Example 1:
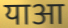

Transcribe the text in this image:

याआ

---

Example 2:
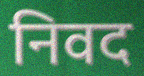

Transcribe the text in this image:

निवद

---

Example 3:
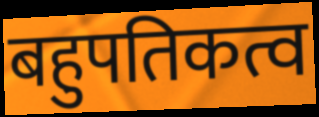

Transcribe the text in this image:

बहुपतिकत्व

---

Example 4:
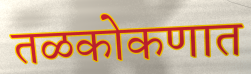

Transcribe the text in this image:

तळकोकणात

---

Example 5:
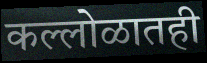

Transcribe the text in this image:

कल्लोळातही